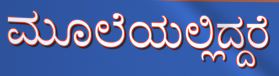
ಮೂಲೆಯಲ್ಲಿದ್ದರೆ